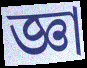
জ্ঞা